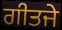
ਗੀਤਜੇ